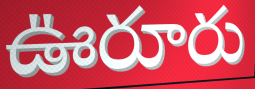
ఊరూరు